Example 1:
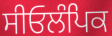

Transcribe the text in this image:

ਸੀਓਲੰਪਿਕ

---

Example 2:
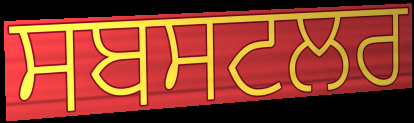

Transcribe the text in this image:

ਸਬਸਟਲਰ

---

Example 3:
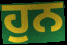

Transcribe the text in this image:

ਹੁਨ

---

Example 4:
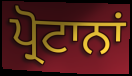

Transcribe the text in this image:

ਪ੍ਰੋਟਾਨਾਂ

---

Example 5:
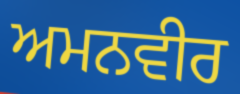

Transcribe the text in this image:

ਅਮਨਵੀਰ